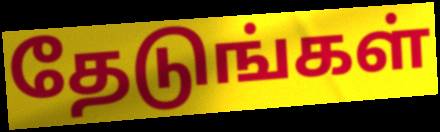
தேடுங்கள்